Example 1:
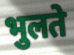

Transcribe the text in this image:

भुलते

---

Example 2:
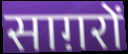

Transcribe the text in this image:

साग़रों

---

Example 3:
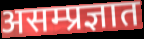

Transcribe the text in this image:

असम्प्रज्ञात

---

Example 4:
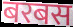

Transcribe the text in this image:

बरबस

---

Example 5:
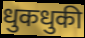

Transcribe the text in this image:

धुकधुकी